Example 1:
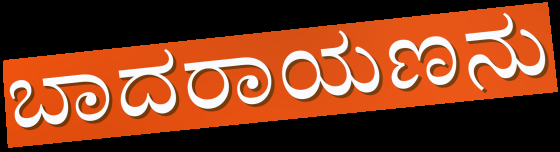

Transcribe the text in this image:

ಬಾದರಾಯಣನು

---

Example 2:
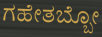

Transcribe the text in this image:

ಗಹೇತಬ್ಬೋ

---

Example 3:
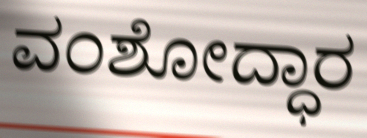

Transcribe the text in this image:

ವಂಶೋದ್ಧಾರ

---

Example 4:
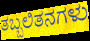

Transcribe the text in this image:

ತಬ್ಬಲಿತನಗಳು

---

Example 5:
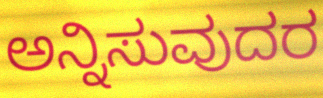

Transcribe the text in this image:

ಅನ್ನಿಸುವುದರ